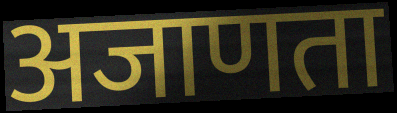
अजाणता